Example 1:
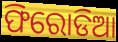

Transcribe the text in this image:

ଫିରୋଡିଆ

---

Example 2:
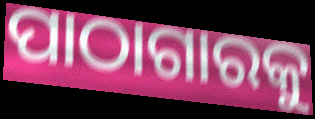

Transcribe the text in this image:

ପାଠାଗାରକୁ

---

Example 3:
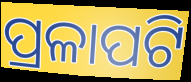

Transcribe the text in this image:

ପ୍ରଳାପଟି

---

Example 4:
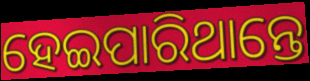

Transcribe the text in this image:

ହେଇପାରିଥାନ୍ତେ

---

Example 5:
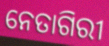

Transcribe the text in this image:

ନେତାଗିରୀ